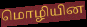
மொழியின